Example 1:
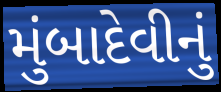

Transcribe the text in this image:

મુંબાદેવીનું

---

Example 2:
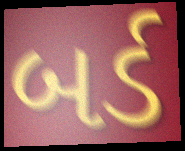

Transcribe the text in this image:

બર્ડ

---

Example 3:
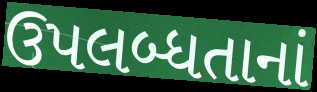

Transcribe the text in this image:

ઉપલબ્ધતાનાં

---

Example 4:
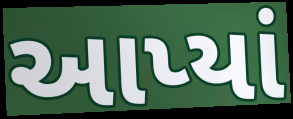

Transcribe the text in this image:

આપ્યાં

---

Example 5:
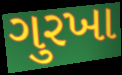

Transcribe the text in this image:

ગુરખા